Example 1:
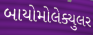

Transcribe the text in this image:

બાયોમોલેક્યુલર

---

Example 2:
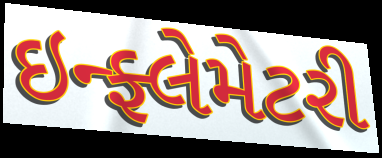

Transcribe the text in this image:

ઇન્ફ્લેમેટરી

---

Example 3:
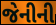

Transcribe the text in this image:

જેનીની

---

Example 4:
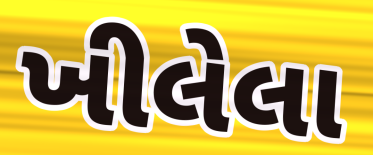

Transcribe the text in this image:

ખીલેલા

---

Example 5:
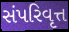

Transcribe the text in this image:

સંપરિવૃત્ત